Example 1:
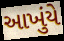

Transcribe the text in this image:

આખુંયે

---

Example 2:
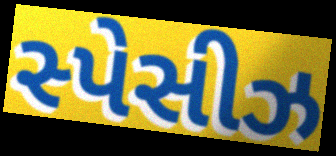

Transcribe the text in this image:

સ્પેસીઝ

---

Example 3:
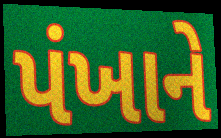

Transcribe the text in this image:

પંખાને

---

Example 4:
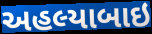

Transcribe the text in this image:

અહલ્યાબાઇ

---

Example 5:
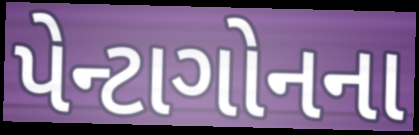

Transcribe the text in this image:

પેન્ટાગોનના